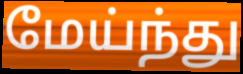
மேய்ந்து